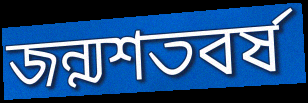
জন্মশতবর্ষ